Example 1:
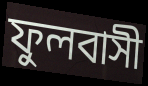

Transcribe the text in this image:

ফুলবাসী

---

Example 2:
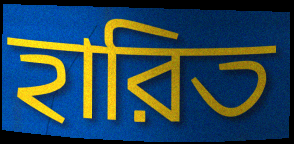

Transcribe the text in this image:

হারিত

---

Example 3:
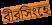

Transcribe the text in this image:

বীরসিংহে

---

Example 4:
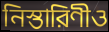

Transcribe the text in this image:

নিস্তারিণীও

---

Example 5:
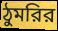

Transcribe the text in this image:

ঠুমরির